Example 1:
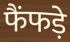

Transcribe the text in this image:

फैंफड़े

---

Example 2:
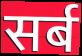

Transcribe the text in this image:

सर्ब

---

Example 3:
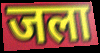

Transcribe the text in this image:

जला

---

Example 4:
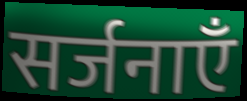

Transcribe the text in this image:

सर्जनाएँ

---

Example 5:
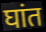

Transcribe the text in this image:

घांत